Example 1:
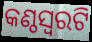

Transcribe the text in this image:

କଣ୍ଠସ୍ଵରଟି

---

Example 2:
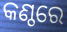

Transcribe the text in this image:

କଣ୍ଠରେ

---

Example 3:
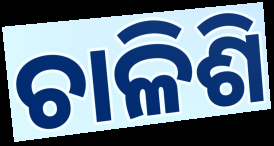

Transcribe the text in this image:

ଚାଳିଶି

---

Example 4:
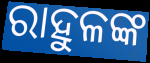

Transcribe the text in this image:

ରାହୁଳଙ୍କ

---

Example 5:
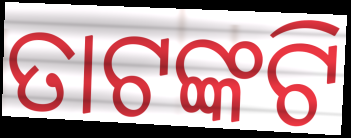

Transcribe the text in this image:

ତାଟଙ୍କଟି